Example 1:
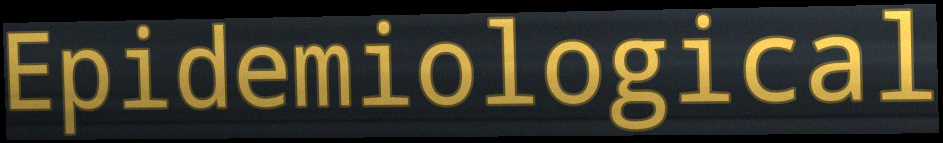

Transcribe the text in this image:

Epidemiological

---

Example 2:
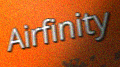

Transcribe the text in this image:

Airfinity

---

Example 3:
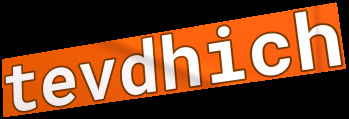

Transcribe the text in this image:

tevdhich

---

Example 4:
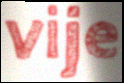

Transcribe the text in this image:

vije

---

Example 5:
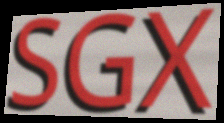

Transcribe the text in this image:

SGX